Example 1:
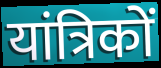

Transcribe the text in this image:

यांत्रिकों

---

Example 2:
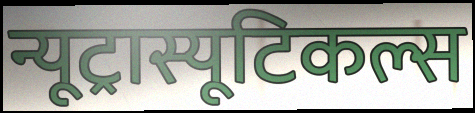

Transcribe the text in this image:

न्यूट्रास्यूटिकल्स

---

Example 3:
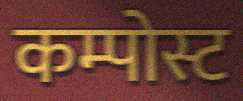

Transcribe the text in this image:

कम्पोस्ट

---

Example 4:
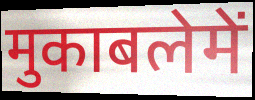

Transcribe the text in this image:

मुकाबलेमें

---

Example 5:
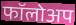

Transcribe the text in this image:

फॉलोअप